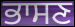
ਭਾਸਣ